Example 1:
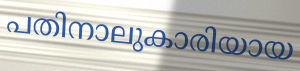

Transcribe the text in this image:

പതിനാലുകാരിയായ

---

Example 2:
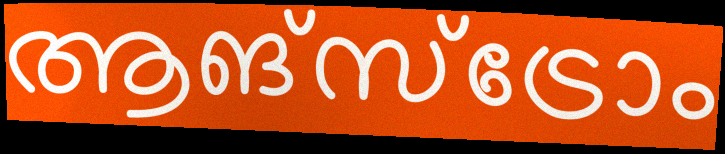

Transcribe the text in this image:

ആങ്സ്ട്രോം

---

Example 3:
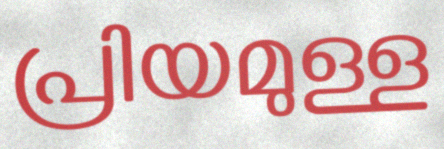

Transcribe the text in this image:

പ്രിയമുള്ള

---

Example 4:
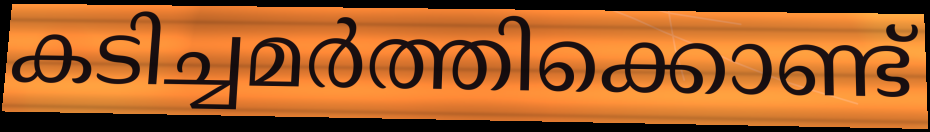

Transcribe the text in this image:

കടിച്ചമർത്തിക്കൊണ്ട്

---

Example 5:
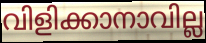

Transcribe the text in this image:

വിളിക്കാനാവില്ല